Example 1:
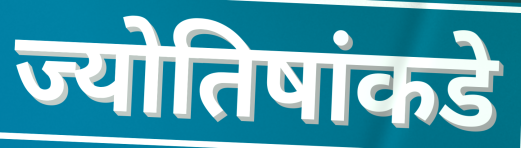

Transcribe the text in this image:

ज्योतिषांकडे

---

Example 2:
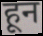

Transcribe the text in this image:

हून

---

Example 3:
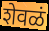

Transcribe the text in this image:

शेवळं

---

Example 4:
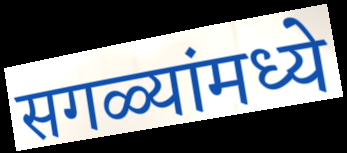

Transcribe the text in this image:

सगळ्यांमध्ये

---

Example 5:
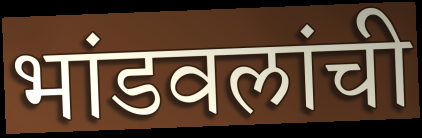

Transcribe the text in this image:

भांडवलांची